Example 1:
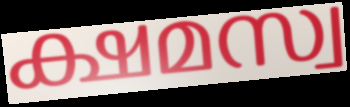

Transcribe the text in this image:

ക്ഷമസ്വ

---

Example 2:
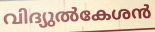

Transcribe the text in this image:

വിദ്യുൽകേശൻ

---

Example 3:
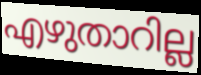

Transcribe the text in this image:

എഴുതാറില്ല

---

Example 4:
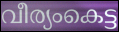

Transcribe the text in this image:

വീര്യംകെട്ട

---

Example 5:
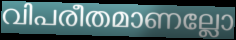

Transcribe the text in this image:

വിപരീതമാണല്ലോ